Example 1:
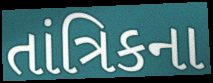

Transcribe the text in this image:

તાંત્રિકના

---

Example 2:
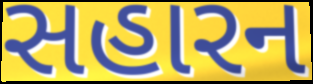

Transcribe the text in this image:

સહારન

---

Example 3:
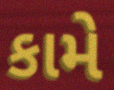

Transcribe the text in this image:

કામે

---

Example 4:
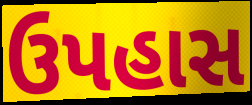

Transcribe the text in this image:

ઉપહાસ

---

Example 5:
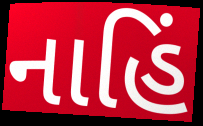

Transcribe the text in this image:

નાહિં